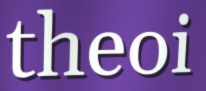
theoi